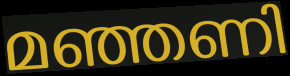
മഞ്ഞണി